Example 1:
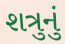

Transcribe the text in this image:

શત્રુનું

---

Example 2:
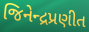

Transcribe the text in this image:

જિનેન્દ્રપ્રણીત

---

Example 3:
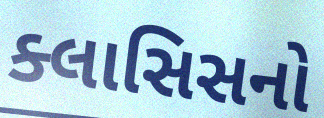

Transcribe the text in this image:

ક્લાસિસનો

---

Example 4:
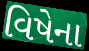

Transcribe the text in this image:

વિષેના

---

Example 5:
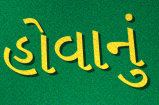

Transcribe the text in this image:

હોવાનું